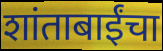
शांताबाईंचा